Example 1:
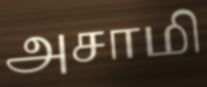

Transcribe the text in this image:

அசாமி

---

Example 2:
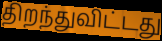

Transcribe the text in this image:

திறந்துவிட்டது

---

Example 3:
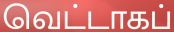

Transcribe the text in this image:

வெட்டாகப்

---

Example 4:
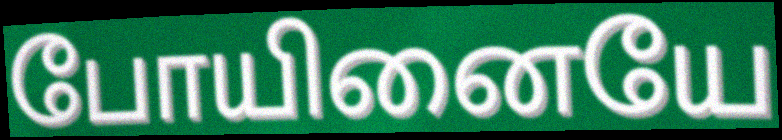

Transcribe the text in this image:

போயினையே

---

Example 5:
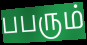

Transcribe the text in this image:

பபரும்